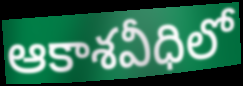
ఆకాశవీధిలో